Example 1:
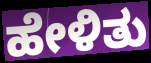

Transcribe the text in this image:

ಹೇಳಿತು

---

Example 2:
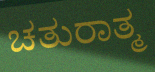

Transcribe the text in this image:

ಚತುರಾತ್ಮ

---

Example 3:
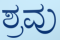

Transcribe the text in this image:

ಶ್ರವು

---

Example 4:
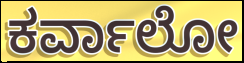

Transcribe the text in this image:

ಕರ್ವಾಲೋ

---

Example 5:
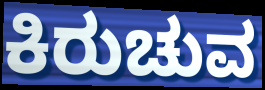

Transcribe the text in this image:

ಕಿರುಚುವ